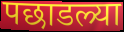
पछाडल्या